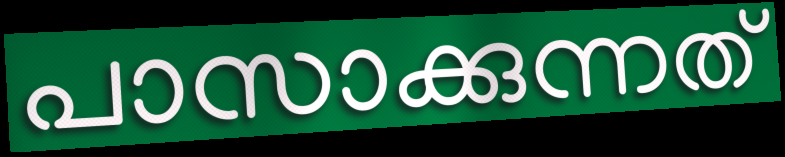
പാസാക്കുന്നത്